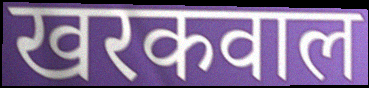
खरकवाल